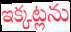
ఇక్కట్లను